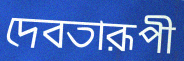
দেবতারূপী